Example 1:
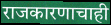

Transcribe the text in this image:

राजकारणाचाही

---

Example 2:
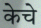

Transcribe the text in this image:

केचे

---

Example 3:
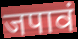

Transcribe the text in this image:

जपावं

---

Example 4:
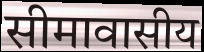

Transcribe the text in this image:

सीमावासीय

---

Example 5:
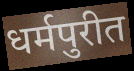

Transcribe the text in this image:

धर्मपुरीत